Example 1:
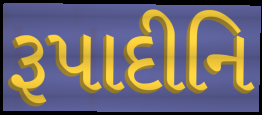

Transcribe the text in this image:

રૂપાદીનિ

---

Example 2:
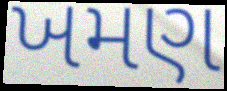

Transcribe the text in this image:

ખમણ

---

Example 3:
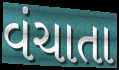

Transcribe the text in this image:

વંચાતા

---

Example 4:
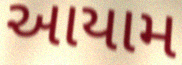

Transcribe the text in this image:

આયામ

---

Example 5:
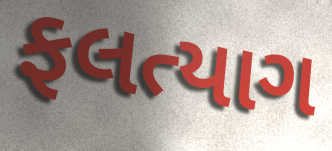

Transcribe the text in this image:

ફલત્યાગ